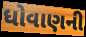
ધોવાણની